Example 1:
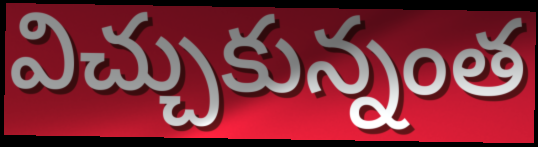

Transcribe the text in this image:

విచ్చుకున్నంత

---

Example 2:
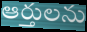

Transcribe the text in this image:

ఆర్తులను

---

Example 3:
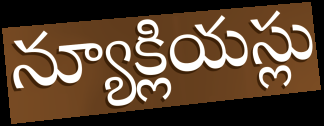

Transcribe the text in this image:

న్యూక్లియస్లు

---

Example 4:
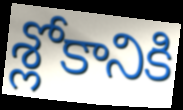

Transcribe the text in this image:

శ్లోకానికి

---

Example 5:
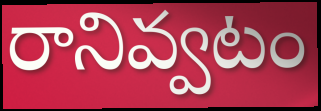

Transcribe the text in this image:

రానివ్వటం